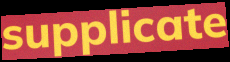
supplicate